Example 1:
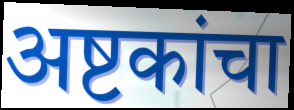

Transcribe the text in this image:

अष्टकांचा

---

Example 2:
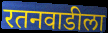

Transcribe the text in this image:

रतनवाडीला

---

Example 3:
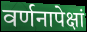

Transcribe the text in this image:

वर्णनापेक्षां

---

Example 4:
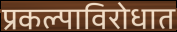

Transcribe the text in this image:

प्रकल्पाविरोधात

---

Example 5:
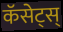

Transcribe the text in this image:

कॅसेट्स्